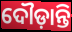
ଦୌଡ଼ାନ୍ତି